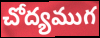
చోద్యముగ